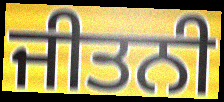
ਜੀਤਨੀ